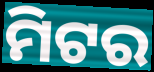
ମିଟର